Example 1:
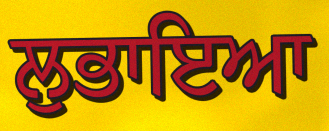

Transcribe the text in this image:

ਲੁਭਾਇਆ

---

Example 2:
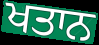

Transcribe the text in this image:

ਖਤਾਨ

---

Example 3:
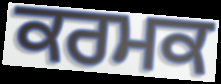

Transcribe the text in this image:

ਕਰਮਕ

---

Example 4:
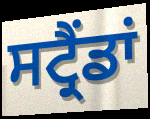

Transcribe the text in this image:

ਸਟ੍ਰੈਂਡਾਂ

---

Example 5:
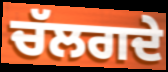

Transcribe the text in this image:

ਚੱਲਗਦੇ